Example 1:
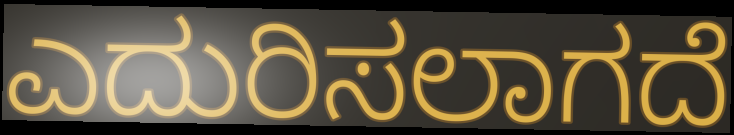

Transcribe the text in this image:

ಎದುರಿಸಲಾಗದೆ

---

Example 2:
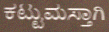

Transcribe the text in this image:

ಕಟ್ಟುಮಸ್ತಾಗಿ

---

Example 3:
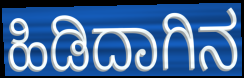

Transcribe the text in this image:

ಹಿಡಿದಾಗಿನ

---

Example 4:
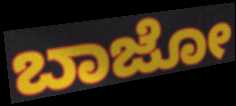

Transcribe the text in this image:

ಬಾಜೋ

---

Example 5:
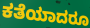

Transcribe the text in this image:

ಕತೆಯಾದರೂ